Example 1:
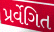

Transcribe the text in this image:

પ્રર્વેગિત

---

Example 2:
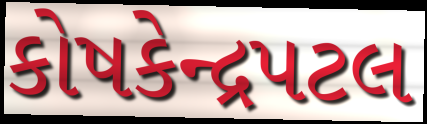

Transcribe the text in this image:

કોષકેન્દ્રપટલ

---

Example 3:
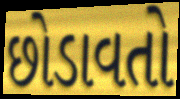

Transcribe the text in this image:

છોડાવતો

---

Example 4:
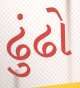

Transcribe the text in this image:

ઢુંઢો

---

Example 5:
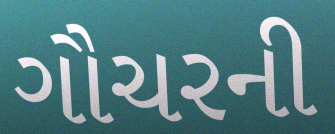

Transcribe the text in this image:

ગૌચરની